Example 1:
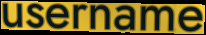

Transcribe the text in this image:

username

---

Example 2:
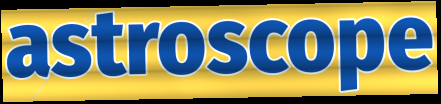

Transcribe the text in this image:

astroscope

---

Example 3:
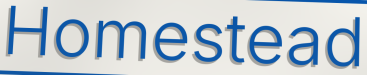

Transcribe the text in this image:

Homestead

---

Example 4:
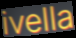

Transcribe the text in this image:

ivella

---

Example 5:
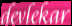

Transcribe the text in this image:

devlekar